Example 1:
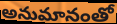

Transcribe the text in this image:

అనుమానంతో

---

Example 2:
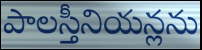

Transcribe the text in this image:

పాలస్తీనియన్లను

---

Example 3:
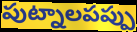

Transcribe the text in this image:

పుట్నాలపప్పు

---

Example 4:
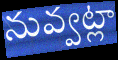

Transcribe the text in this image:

నువ్వట్లా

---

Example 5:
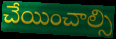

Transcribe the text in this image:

చేయించాల్సి